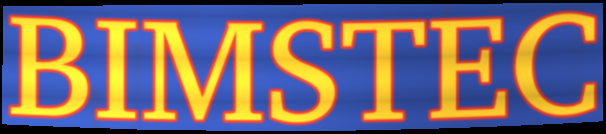
BIMSTEC